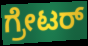
ಗ್ರೇಟರ್